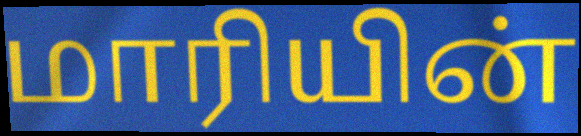
மாரியின்